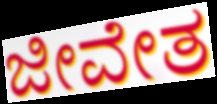
ಜೀವೇತ